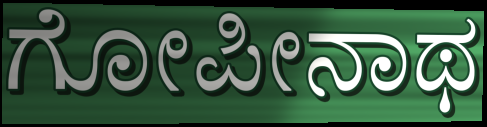
ಗೋಪೀನಾಥ